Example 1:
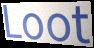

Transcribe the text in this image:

Loot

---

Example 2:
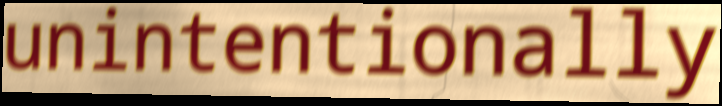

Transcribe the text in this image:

unintentionally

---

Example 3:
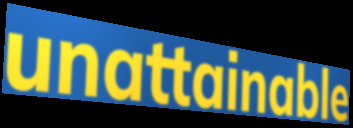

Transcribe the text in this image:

unattainable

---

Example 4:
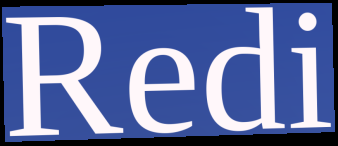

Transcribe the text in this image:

Redi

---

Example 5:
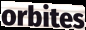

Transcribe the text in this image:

orbites